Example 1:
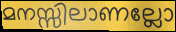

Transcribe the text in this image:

മനസ്സിലാണല്ലോ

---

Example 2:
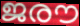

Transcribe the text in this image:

ജരൗ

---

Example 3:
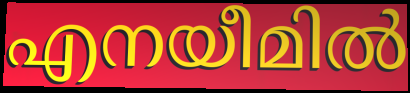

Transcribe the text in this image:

എനയീമിൽ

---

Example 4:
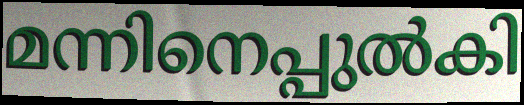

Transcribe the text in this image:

മന്നിനെപ്പുൽകി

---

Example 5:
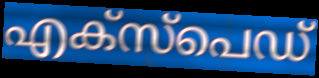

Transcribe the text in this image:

എക്സ്പെഡ്